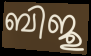
ബിജു